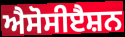
ਐਸੋਸੀੲੈਸ਼ਨ